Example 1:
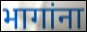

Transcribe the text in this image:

भागांना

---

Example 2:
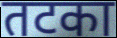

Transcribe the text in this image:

तटका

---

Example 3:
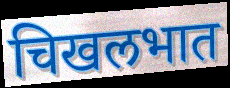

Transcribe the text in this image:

चिखलभात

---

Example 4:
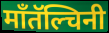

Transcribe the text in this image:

माँतॅल्चिनी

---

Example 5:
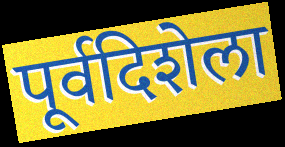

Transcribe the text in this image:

पूर्वदिशेला